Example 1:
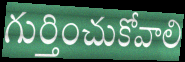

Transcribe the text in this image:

గుర్తించుకోవాలి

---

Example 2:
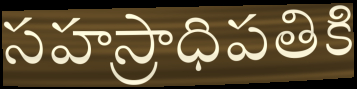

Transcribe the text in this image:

సహస్రాధిపతికి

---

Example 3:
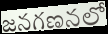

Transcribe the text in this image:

జనగణనలో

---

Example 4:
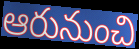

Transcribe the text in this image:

ఆరునుంచి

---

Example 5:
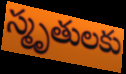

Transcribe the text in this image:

స్మృతులకు